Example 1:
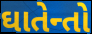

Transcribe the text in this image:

ઘાતેન્તો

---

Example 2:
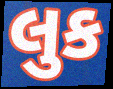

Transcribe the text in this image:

લુક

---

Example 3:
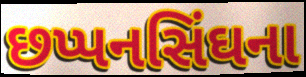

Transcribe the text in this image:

છપ્પનસિંઘના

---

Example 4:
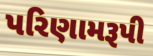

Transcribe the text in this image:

પરિણામરૂપી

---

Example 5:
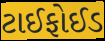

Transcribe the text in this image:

ટાઈફોઈડ